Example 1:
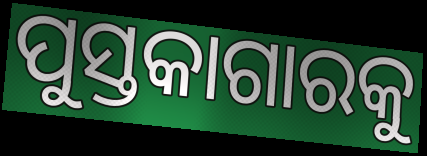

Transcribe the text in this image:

ପୁସ୍ତକାଗାରକୁ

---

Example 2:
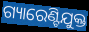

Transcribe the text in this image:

ଗ୍ୟାରେଣ୍ଟିଯୁକ୍ତ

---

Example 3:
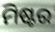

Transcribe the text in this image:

ମିଷ୍ଟର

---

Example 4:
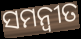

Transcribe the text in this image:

ସମନ୍ଵୀତ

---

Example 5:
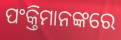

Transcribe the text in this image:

ପଂକ୍ତିମାନଙ୍କରେ